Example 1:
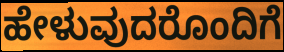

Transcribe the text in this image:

ಹೇಳುವುದರೊಂದಿಗೆ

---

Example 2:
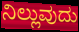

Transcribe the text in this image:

ನಿಲ್ಲುವುದು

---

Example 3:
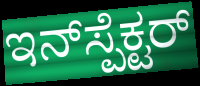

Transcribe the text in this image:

ಇನ್‌ಸ್ಪೆಕ್ಟರ್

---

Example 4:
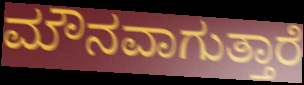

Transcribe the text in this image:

ಮೌನವಾಗುತ್ತಾರೆ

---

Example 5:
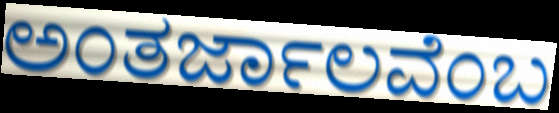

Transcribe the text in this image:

ಅಂತರ್ಜಾಲವೆಂಬ